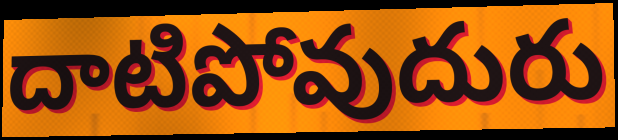
దాటిపోవుదురు